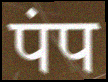
पंप